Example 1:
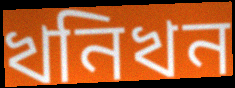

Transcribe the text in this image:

খনিখন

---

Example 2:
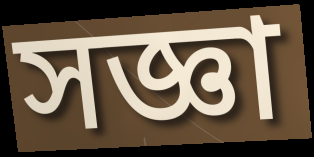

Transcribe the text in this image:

সজ্ঞা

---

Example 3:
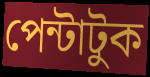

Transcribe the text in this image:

পেন্টাটুক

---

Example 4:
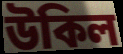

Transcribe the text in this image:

উকিল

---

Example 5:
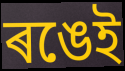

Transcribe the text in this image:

ৰঙেই